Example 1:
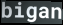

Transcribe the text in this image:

bigan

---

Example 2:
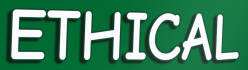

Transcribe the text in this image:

ETHICAL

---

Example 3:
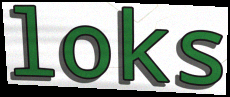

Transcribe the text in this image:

loks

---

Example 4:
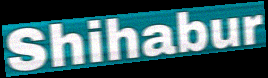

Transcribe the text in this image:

Shihabur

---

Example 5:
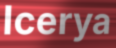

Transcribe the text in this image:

Icerya